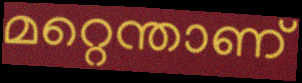
മറ്റെന്താണ്